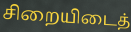
சிறையிடைத்